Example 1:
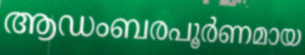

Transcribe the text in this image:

ആഡംബരപൂർണമായ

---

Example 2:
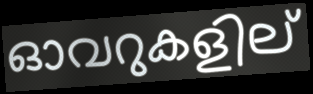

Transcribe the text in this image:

ഓവറുകളില്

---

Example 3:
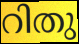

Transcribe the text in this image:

റിതു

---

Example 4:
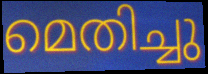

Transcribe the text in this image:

മെതിച്ചു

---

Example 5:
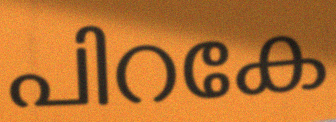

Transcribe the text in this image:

പിറകേ